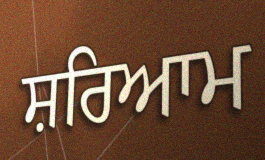
ਸ਼ਰਿਆਮ